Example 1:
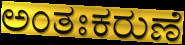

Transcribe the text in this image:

ಅಂತಃಕರುಣೆ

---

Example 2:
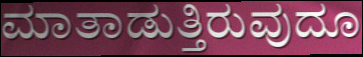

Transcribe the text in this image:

ಮಾತಾಡುತ್ತಿರುವುದೂ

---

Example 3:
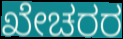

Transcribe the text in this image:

ಖೇಚರರ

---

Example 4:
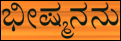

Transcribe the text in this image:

ಭೀಷ್ಮನನು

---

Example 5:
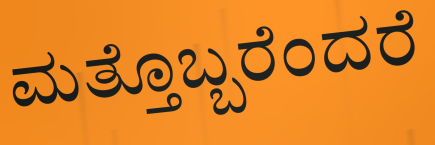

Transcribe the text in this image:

ಮತ್ತೊಬ್ಬರೆಂದರೆ